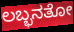
ಲಬ್ಭನತೋ